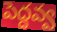
పెద్దవ్వ